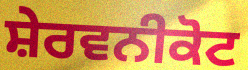
ਸ਼ੇਰਵਨੀਕੋਟ